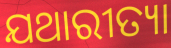
ଯଥାରୀତ୍ୟା